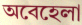
অবেহেলা